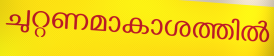
ചുറ്റണമാകാശത്തിൽ